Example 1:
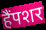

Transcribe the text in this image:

हैंपशर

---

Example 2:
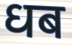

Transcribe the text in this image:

धब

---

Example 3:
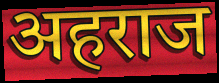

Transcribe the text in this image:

अहराज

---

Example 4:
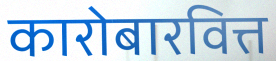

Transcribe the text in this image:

कारोबारवित्त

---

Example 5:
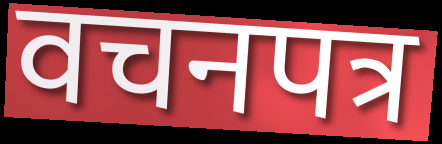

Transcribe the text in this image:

वचनपत्र